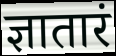
ज्ञातारं